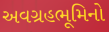
અવગ્રહભૂમિનો